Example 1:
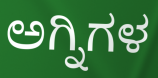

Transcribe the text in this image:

ಅಗ್ನಿಗಳ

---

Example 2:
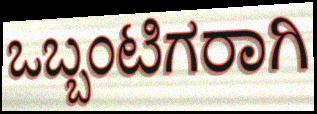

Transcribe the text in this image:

ಒಬ್ಬಂಟಿಗರಾಗಿ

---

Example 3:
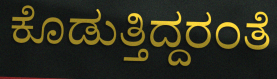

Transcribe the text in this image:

ಕೊಡುತ್ತಿದ್ದರಂತೆ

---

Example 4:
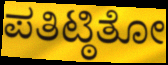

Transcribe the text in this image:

ಪತಿಟ್ಠಿತೋ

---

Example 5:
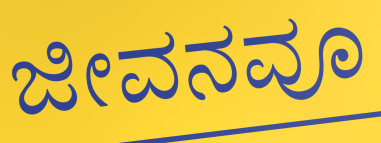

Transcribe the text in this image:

ಜೀವನವೂ